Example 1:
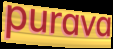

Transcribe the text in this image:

purava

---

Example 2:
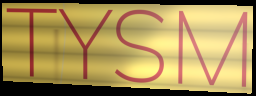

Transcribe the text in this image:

TYSM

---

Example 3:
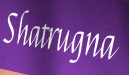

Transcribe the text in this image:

Shatrugna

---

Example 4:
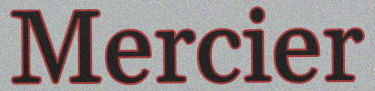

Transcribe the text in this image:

Mercier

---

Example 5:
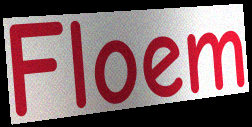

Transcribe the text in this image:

Floem